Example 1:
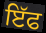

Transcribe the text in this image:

ਇੱਫ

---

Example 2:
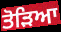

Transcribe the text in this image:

ਤੋਡ਼ਿਆ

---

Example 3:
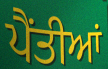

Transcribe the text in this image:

ਪੈਂਤੀਆਂ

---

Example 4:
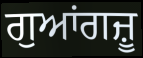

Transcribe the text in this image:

ਗੁਆਂਗਜ਼ੂ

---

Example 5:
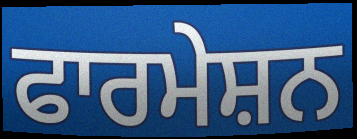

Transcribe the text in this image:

ਫਾਰਮੇਸ਼ਨ